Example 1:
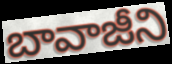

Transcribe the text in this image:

బావాజీని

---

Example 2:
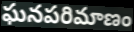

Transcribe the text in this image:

ఘనపరిమాణం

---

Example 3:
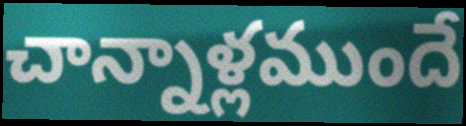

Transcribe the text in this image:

చాన్నాళ్లముందే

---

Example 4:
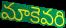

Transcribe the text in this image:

మాకెవరి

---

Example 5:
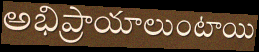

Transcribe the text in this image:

అభిప్రాయాలుంటాయి